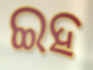
ଇହ